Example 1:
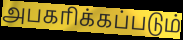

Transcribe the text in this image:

அபகரிக்கப்படும்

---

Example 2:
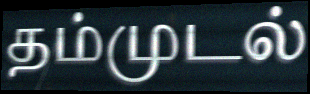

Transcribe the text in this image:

தம்முடல்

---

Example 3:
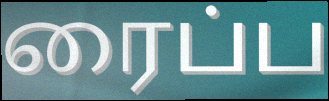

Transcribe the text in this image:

ரைப்ப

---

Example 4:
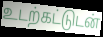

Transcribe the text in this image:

உடற்கட்டுடன்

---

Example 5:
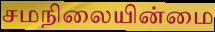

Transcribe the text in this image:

சமநிலையின்மை